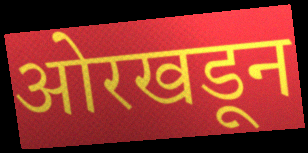
ओरखडून